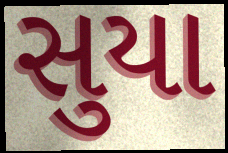
સુયા